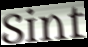
Sint